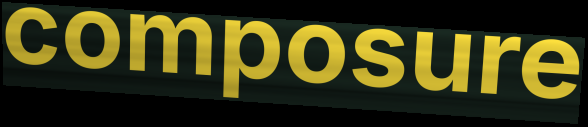
composure